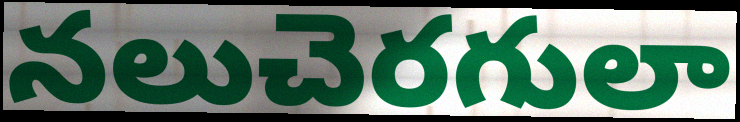
నలుచెరగులా